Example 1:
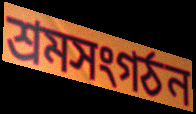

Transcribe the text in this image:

শ্রমসংগঠন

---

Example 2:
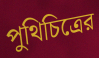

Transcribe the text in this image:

পুথিচিত্রের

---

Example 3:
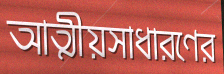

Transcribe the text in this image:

আত্মীয়সাধারণের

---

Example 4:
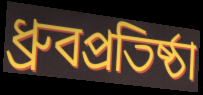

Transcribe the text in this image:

ধ্রুবপ্রতিষ্ঠা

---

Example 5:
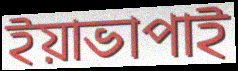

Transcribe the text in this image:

ইয়াভাপাই